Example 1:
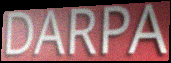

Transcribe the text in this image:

DARPA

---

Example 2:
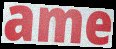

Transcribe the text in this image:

ame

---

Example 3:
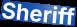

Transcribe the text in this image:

Sheriff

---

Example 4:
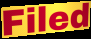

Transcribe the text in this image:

Filed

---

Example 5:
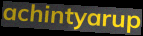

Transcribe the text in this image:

achintyarup